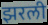
झरली